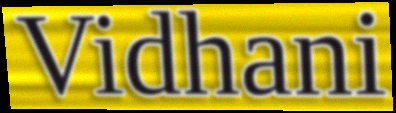
Vidhani